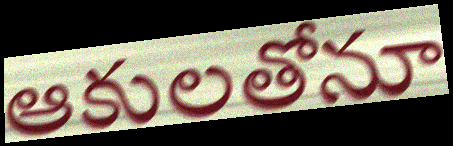
ఆకులతోనూ